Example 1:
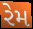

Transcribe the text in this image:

રેમ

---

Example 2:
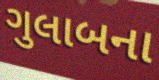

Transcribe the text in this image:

ગુલાબના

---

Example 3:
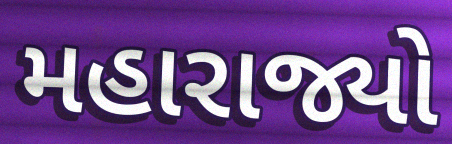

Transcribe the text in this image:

મહારાજ્યો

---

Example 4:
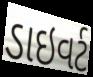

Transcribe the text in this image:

ડાઇવર્ટ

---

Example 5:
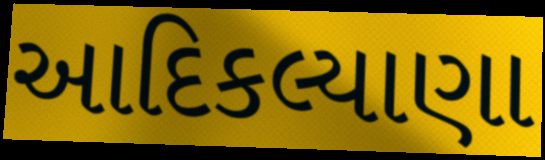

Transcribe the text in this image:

આદિકલ્યાણા